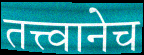
तत्त्वानेच